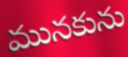
మునకును